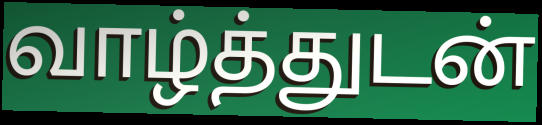
வாழ்த்துடன்